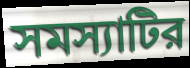
সমস্যাটির